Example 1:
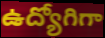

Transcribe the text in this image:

ఉద్యోగిగా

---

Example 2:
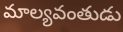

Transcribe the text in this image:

మాల్యవంతుడు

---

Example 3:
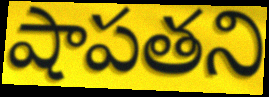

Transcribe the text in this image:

షాపతని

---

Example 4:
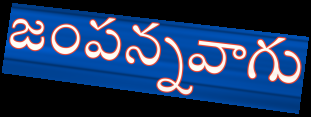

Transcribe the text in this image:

జంపన్నవాగు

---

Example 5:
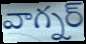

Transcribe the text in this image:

వాగ్నర్